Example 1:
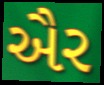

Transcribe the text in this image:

ઐર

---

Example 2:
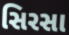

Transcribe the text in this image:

સિરસા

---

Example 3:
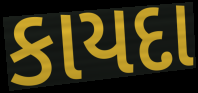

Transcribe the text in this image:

કાયદા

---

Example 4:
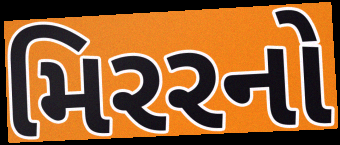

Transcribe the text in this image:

મિરરનો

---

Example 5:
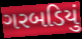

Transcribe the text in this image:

ગરબડિયું